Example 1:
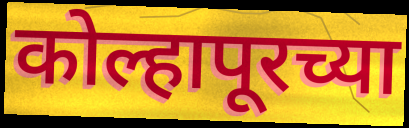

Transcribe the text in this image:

कोल्हापूरच्या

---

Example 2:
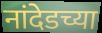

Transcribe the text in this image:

नांदेडच्या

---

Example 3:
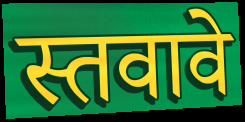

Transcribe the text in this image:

स्तवावे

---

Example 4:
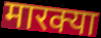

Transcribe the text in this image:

मारक्या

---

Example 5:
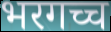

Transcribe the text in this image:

भरगच्च